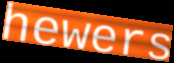
hewers